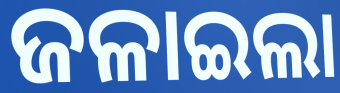
ଜଳାଇଲା